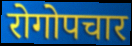
रोगोपचार